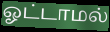
ஓட்டாமல்